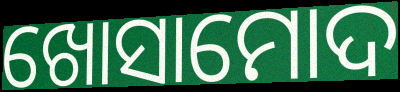
ଖୋସାମୋଦ